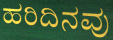
ಹರಿದಿನವು